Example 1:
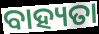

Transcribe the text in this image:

ବାହ୍ୟତା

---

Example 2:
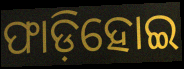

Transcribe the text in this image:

ଫାଡ଼ିହୋଇ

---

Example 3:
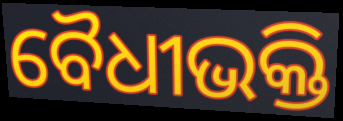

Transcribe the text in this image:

ବୈଧୀଭକ୍ତି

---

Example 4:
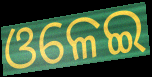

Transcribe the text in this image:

ଓଳେଇ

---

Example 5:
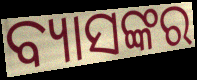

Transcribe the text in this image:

ବ୍ୟାସଙ୍କର